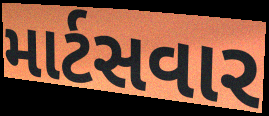
માર્ટસવાર